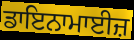
ਡਾਇਨਾਮਾਈਜ਼